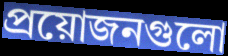
প্রয়োজনগুলো